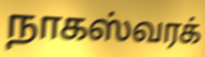
நாகஸ்வரக்